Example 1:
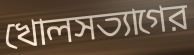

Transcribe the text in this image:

খোলসত্যাগের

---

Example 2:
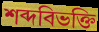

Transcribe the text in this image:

শব্দবিভক্তি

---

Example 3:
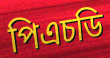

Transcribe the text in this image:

পিএচডি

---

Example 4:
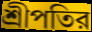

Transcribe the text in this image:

শ্রীপতির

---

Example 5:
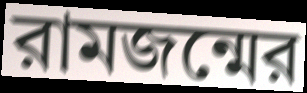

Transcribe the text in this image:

রামজন্মের